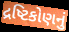
દ્રષ્ટિકોણનું